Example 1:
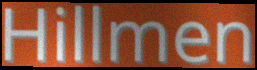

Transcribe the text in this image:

Hillmen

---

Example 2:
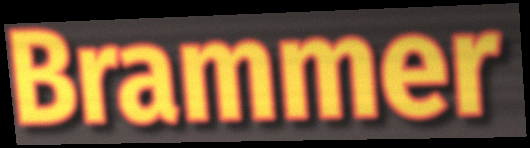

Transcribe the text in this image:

Brammer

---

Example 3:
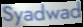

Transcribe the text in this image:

Syadwad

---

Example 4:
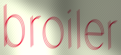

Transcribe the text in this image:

broiler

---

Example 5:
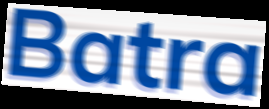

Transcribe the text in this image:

Batra